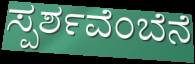
ಸ್ಪರ್ಶವೆಂಬೆನೆ